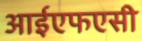
आईएफएसी